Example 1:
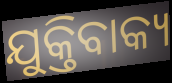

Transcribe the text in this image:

ଯୁକ୍ତିବାକ୍ୟ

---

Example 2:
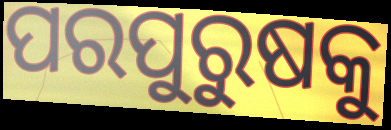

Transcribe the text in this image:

ପରପୁରୁଷକୁ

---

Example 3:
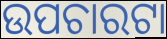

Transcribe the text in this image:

ଉପଚାରଟା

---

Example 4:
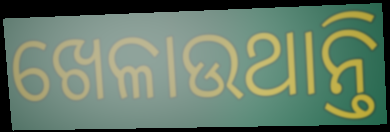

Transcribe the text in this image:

ଖେଳାଉଥାନ୍ତି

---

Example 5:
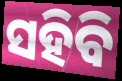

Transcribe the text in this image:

ସହିବି